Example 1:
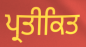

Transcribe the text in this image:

ਪ੍ਰਤੀਕਿਤ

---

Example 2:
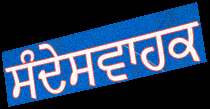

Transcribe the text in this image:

ਸੰਦੇਸਵਾਹਕ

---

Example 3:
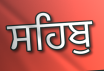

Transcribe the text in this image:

ਸਹਿਬੁ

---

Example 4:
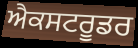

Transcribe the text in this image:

ਐਕਸਟਰੂਡਰ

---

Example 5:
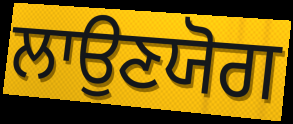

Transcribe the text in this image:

ਲਾਉਣਯੋਗ